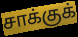
சாக்குக்